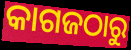
କାଗଜଠାରୁ